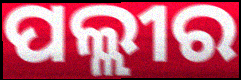
ପଲ୍ଲୀର